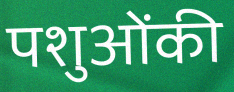
पशुओंकी